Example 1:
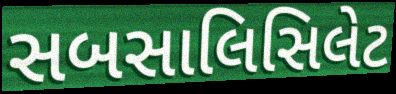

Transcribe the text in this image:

સબસાલિસિલેટ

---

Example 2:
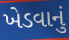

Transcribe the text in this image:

ખેડવાનું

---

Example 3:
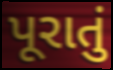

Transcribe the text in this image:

પૂરાતું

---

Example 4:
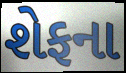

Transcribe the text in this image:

શેફના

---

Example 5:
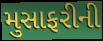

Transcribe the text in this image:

મુસાફરીની